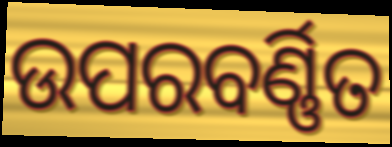
ଉପରବର୍ଣ୍ଣିତ